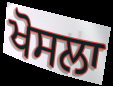
ਖੋਸਲਾ